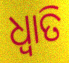
ଧ୍ବାତି